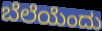
ಬೆಲೆಯೆಂದು